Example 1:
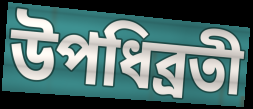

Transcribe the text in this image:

উপধিব্রতী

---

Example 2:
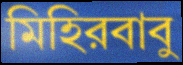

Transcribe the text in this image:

মিহিরবাবু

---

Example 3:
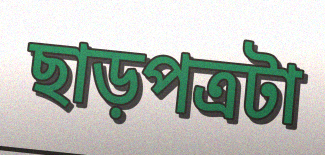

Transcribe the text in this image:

ছাড়পত্রটা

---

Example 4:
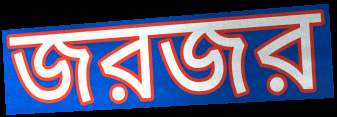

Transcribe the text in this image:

জরজর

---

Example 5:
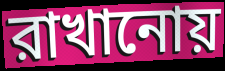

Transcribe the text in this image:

রাখানোয়